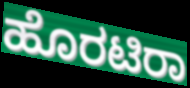
ಹೊರಟಿರಾ